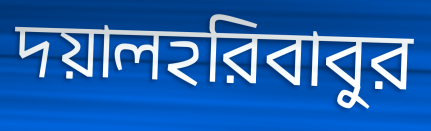
দয়ালহরিবাবুর